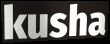
kusha